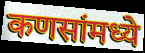
कणसांमध्ये